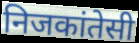
निजकांतेसी